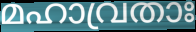
മഹാവ്രതാഃ